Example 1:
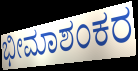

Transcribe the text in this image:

ಭೀಮಾಶಂಕರ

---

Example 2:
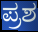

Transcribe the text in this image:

ಪ್ರಶ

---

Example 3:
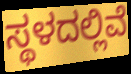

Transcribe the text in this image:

ಸ್ಥಳದಲ್ಲಿವೆ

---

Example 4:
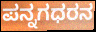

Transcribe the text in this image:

ಪನ್ನಗಧರನ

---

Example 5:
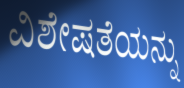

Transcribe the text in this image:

ವಿಶೇಷತೆಯನ್ನು